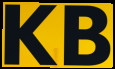
KB